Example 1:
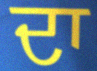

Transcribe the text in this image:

ਦਾ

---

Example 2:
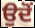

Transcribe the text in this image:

ਉਦੋਂ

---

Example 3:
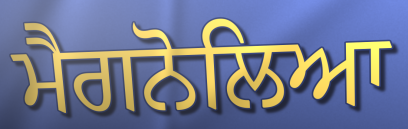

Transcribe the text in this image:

ਮੈਗਨੋਲਿਆ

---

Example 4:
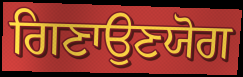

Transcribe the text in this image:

ਗਿਣਾਉਣਯੋਗ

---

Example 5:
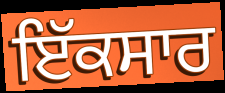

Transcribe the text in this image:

ਇੱਕਸਾਰ